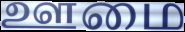
ஊமை